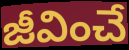
జీవించే